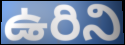
ఉరిని